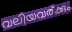
വലിയവര്ക്കും